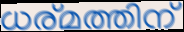
ധര്മത്തിന്